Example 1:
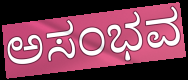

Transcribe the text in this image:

ಅಸಂಭವ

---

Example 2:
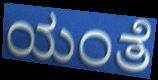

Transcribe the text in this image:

ಯಂತೆ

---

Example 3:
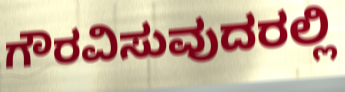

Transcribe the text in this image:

ಗೌರವಿಸುವುದರಲ್ಲಿ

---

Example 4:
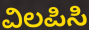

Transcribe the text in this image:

ವಿಲಪಿಸಿ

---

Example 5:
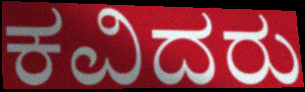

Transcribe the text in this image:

ಕವಿದರು